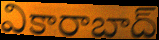
వికారాబాద్